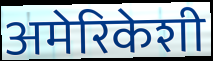
अमेरिकेशी